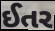
ઈતર